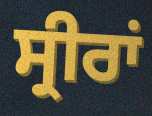
ਸ੍ਰੀਰਾਂ